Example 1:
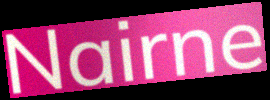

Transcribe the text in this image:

Nairne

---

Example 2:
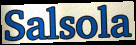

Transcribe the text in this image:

Salsola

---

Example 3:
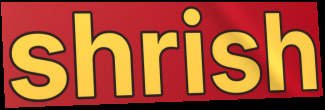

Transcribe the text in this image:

shrish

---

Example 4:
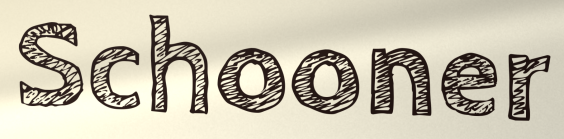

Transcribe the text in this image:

Schooner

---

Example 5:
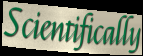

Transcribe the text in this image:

Scientifically